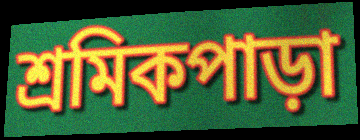
শ্রমিকপাড়া